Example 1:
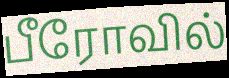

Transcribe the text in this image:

பீரோவில்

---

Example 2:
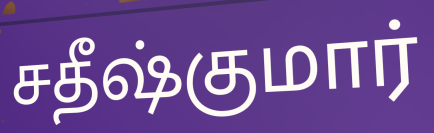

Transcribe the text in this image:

சதீஷ்குமார்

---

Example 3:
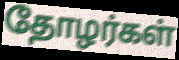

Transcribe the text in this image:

தோழர்கள்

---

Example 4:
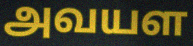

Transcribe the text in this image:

அவயள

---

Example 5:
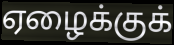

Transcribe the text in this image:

ஏழைக்குக்